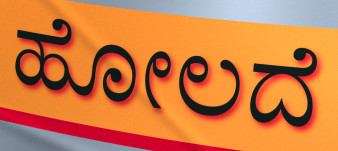
ಹೋಲದೆ